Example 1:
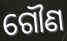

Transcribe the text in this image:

ଗୌଣ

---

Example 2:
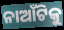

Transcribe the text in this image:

ନାଆଁଟିକୁ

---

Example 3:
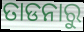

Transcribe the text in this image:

ତାଡନାରୁ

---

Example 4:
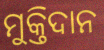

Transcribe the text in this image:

ମୁକ୍ତିଦାନ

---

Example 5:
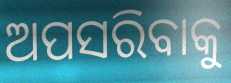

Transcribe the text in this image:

ଅପସରିବାକୁ